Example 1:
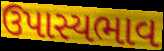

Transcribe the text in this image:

ઉપાસ્યભાવ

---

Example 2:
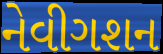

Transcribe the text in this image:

નેવીગશન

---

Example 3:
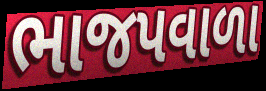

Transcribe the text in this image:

ભાજપવાળા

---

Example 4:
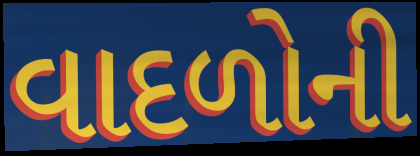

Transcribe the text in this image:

વાદળોની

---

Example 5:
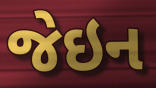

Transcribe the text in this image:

જેઇન